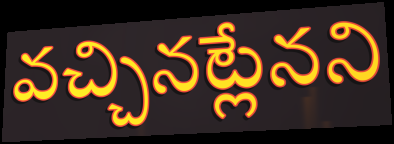
వచ్చినట్లేనని